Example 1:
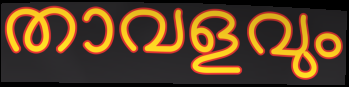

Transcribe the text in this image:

താവളവും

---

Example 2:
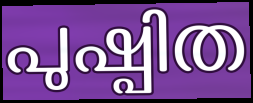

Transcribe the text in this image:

പുഷ്പിത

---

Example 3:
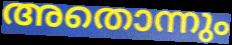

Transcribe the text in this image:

അതൊന്നും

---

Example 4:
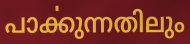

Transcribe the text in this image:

പാൎക്കുന്നതിലും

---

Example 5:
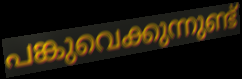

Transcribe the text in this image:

പങ്കുവെക്കുന്നുണ്ട്